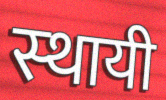
स्‍थायी